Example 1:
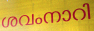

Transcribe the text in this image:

ശവംനാറി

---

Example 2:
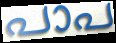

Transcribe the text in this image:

പാപ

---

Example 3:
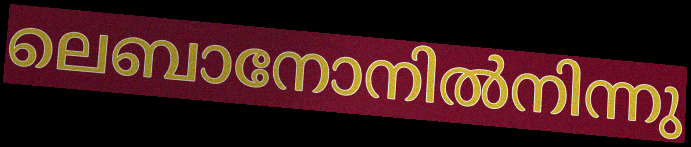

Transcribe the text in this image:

ലെബാനോനിൽനിന്നു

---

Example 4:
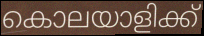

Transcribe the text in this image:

കൊലയാളിക്ക്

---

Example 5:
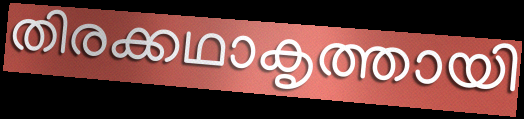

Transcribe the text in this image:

തിരക്കഥാകൃത്തായി